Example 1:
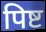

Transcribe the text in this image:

पिष्ट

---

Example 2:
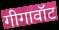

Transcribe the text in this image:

गीगावॉट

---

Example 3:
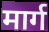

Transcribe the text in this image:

मार्ग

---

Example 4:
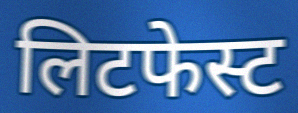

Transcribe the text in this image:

लिटफेस्ट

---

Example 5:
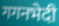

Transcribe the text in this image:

गगनभेदी